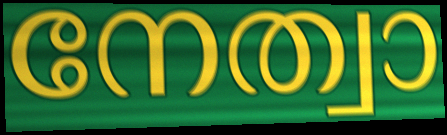
നേത്വാ